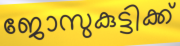
ജോസുകുട്ടിക്ക്